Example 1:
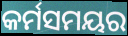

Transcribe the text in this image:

କର୍ମସମୟର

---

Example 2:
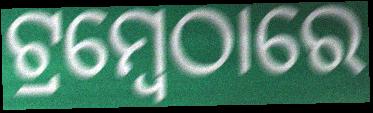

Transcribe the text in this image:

ଟ୍ରମ୍ବେଠାରେ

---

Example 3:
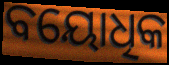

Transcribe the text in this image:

ବୟୋଧିକ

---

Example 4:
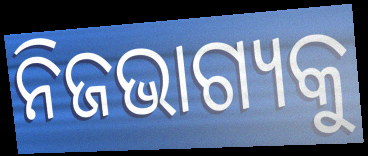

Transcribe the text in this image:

ନିଜଭାଗ୍ୟକୁ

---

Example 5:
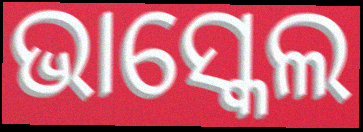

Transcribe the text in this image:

ଭାସ୍କେଲ